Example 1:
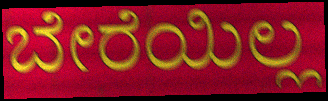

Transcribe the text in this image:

ಬೇರೆಯಿಲ್ಲ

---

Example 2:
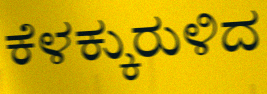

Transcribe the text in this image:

ಕೆಳಕ್ಕುರುಳಿದ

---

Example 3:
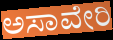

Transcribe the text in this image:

ಅಸಾವೇರಿ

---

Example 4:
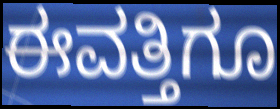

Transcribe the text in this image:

ಈವತ್ತಿಗೂ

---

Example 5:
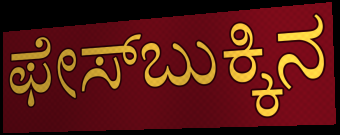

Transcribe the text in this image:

ಫೇಸ್‌ಬುಕ್ಕಿನ